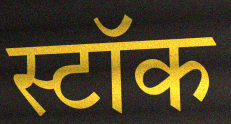
स्टॉक